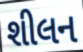
શીલન